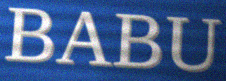
BABU